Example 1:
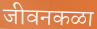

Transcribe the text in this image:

जीवनकळा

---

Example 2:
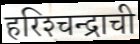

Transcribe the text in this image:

हरिश्चन्द्राची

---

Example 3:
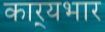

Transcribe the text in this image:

कार्यभार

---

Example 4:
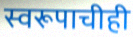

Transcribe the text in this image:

स्वरूपाचीही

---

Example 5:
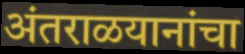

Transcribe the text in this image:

अंतराळयानांचा